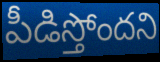
పీడిస్తోందని